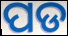
ପଡ